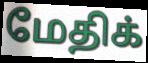
மேதிக்